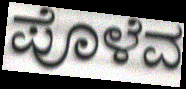
ಪೊಳೆವ